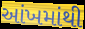
આંખમાંથી